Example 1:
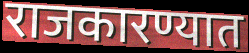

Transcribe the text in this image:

राजकारण्यात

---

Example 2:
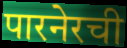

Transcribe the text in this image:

पारनेरची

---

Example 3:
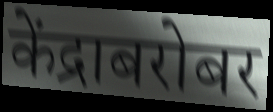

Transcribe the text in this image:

केंद्राबरोबर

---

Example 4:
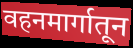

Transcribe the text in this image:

वहनमार्गातून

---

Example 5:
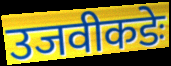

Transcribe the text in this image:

उजवीकडेः